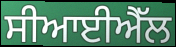
ਸੀਆਈਐੱਲ